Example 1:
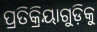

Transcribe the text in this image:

ପ୍ରତିକ୍ରିୟାଗୁଡ଼ିକୁ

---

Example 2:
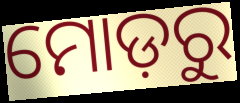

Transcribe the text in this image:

ମୋଡ଼ରୁ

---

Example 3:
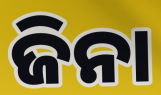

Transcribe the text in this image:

ଜିନା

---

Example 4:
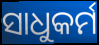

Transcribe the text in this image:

ସାଧୁକର୍ମ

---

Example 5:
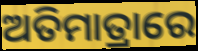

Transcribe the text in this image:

ଅତିମାତ୍ରାରେ